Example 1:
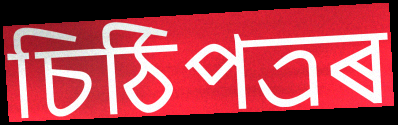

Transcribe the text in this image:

চিঠিপত্ৰৰ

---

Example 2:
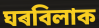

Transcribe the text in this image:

ঘৰবিলাক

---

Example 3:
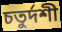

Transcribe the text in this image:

চতুৰ্দশী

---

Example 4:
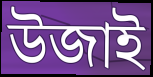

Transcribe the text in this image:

উজাই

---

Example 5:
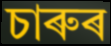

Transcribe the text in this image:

চাৰুৰ